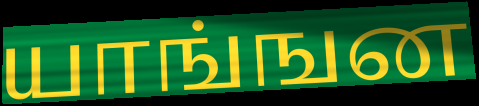
யாங்ஙன